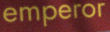
emperor